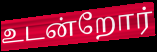
உடன்றோர்